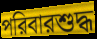
পরিবারশুদ্ধ